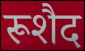
रूशैद